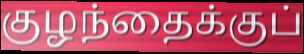
குழந்தைக்குப்